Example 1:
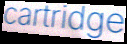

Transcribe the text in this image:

cartridge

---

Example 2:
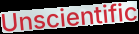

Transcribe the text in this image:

Unscientific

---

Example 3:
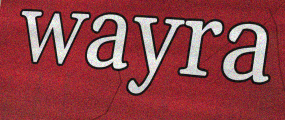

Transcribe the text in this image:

wayra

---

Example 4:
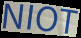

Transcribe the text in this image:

NIOT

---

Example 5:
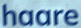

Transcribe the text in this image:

haare